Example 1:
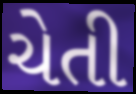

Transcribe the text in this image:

ચેતી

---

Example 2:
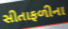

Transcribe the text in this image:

સીતાફળીના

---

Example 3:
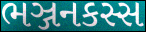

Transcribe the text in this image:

ભઞ્જનકસ્સ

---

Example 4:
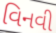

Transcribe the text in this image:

વિનવી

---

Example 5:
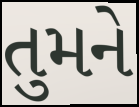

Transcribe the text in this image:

તુમને